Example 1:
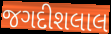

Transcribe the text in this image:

જગદીશલાલ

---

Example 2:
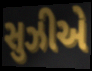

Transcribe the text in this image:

સુઝીએ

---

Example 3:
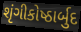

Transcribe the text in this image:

શૃંગીકોષ્ઠાર્બુદ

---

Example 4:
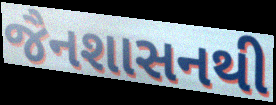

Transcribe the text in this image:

જૈનશાસનથી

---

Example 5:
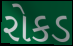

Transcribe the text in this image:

રોકડ